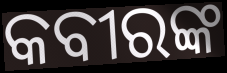
କବୀରଙ୍କ